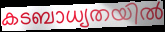
കടബാധ്യതയിൽ